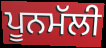
ਪੂਨਮੱਲੀ